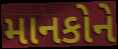
માનકોને